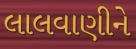
લાલવાણીને